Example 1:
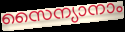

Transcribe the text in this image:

സൈന്യാനാം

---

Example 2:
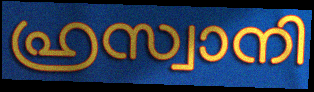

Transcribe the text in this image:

ഹ്രസ്വാനി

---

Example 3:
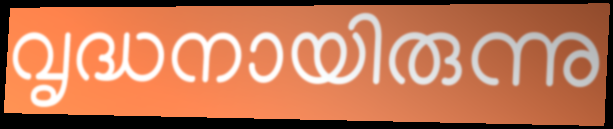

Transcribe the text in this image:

വൃദ്ധനായിരുന്നു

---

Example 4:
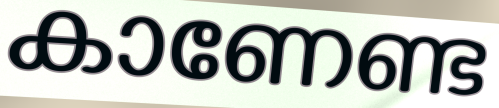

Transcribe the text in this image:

കാണേണ്ട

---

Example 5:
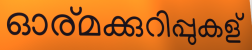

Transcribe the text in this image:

ഓര്മക്കുറിപ്പുകള്